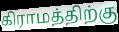
கிராமத்திற்கு